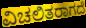
ವಿಚಲಿತರಾಗದೆ